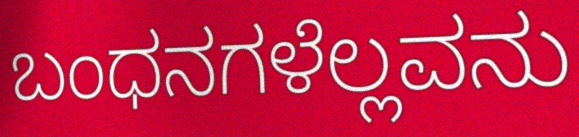
ಬಂಧನಗಳೆಲ್ಲವನು